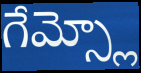
గేమ్స్లో